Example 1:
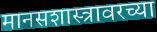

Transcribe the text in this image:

मानसशास्त्रावरच्या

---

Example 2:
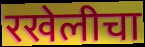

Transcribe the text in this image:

रखेलीचा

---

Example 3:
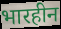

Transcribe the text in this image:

भारहीन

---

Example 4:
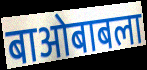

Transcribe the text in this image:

बाओबाबला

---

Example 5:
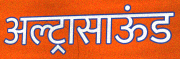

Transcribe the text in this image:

अल्ट्रासाऊंड